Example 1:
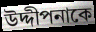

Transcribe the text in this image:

উদ্দীপনাকে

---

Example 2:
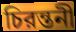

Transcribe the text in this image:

চিরন্তনী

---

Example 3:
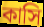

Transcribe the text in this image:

কাসি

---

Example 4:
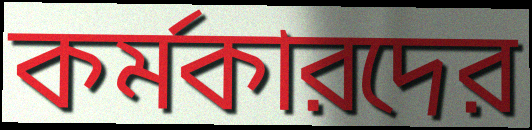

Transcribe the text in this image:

কর্মকারদের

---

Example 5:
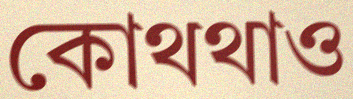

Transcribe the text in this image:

কোথথাও